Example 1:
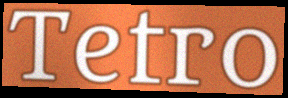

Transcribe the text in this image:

Tetro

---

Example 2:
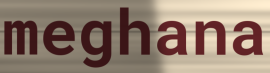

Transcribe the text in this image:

meghana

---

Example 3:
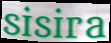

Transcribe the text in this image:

sisira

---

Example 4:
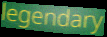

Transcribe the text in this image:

legendary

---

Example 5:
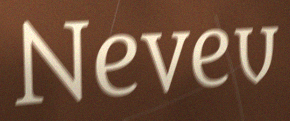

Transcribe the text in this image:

Neveu